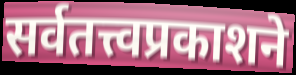
सर्वतत्त्वप्रकाशने